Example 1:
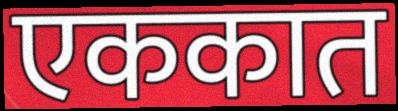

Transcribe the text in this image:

एककात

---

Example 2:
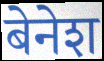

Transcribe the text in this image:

बेनेश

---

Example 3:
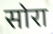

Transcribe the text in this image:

सोरा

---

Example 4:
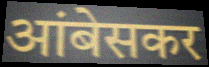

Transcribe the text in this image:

आंबेसकर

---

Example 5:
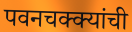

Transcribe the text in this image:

पवनचक्क्यांची